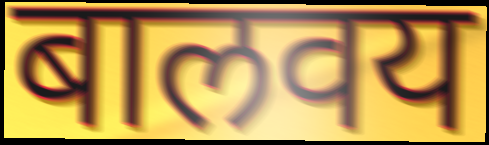
बालवय